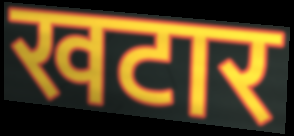
खटार